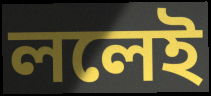
ললেই